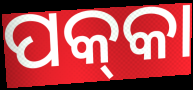
ପକ୍‍କା